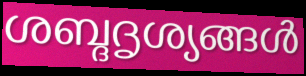
ശബ്ദദൃശ്യങ്ങൾ